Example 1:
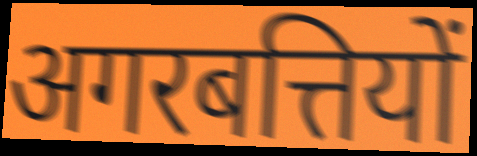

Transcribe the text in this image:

अगरबत्तियों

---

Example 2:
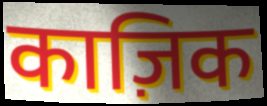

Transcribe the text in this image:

काज़िक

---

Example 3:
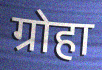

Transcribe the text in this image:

ग्रोहा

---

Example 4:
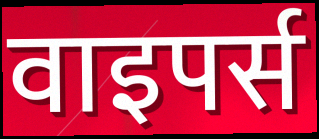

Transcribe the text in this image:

वाइपर्स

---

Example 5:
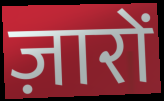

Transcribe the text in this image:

ज़ारों